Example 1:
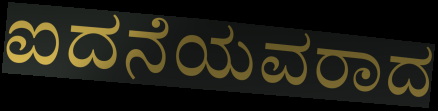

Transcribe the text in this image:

ಐದನೆಯವರಾದ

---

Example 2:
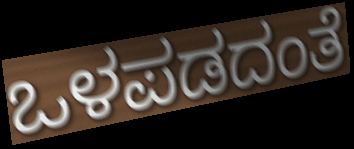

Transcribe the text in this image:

ಒಳಪಡದಂತೆ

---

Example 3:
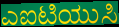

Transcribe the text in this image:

ಎಐಟಿಯುಸಿ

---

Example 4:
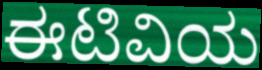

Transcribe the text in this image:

ಈಟಿವಿಯ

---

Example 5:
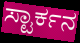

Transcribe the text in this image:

ಸ್ಟಾರ್ಕನ